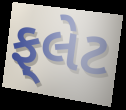
ફ્‌લેટ